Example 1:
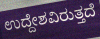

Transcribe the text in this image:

ಉದ್ದೇಶವಿರುತ್ತದೆ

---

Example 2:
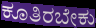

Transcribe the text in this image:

ಕೂತಿರಬೇಕು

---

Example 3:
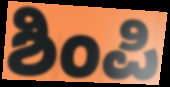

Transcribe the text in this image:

ಶಿಂಪಿ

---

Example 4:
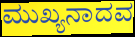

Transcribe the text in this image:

ಮುಖ್ಯನಾದವ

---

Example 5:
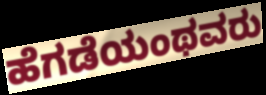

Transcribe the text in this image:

ಹೆಗಡೆಯಂಥವರು